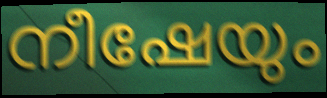
നീഷേയും